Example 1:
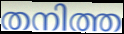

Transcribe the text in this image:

തനിത്ത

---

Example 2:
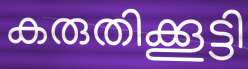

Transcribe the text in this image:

കരുതിക്കൂട്ടി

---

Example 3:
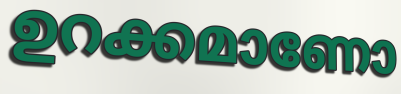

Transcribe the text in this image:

ഉറക്കമാണോ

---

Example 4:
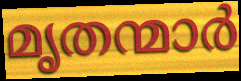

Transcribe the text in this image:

മൃതന്മാർ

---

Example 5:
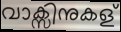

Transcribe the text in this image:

വാക്സിനുകള്